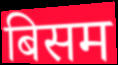
बिसम